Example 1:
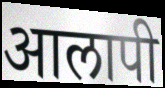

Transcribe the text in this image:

आलापी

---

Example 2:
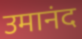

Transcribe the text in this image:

उमानंद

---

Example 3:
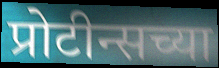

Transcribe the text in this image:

प्रोटीन्सच्या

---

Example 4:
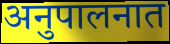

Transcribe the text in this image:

अनुपालनात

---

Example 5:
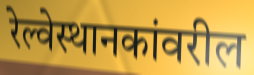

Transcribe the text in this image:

रेल्वेस्थानकांवरील